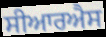
ਸੀਆਰਐਸ